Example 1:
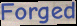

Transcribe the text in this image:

Forged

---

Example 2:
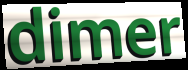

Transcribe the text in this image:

dimer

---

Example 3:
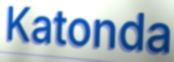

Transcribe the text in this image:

Katonda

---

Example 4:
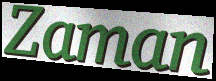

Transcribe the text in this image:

Zaman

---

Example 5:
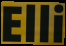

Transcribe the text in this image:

Elli